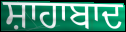
ਸ਼ਾਹਾਬਾਦ